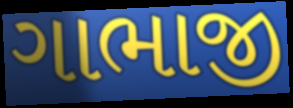
ગાભાજી